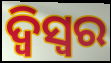
ଦ୍ଵିସ୍ଵର